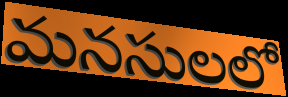
మనసులలో